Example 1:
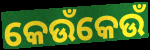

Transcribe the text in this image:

କେଉଁକେଉଁ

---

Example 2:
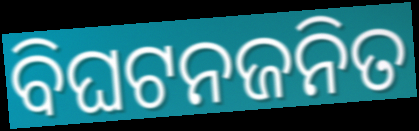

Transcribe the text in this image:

ବିଘଟନଜନିତ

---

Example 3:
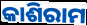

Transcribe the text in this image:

କାଶିରାମ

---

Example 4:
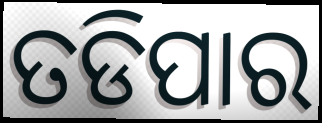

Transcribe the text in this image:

ତଡିପାର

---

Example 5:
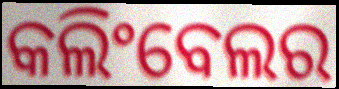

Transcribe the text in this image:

କଲିଂବେଲର